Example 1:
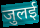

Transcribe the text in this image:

जुलई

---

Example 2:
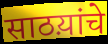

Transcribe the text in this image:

साठय़ांचे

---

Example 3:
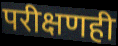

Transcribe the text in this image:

परीक्षणही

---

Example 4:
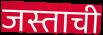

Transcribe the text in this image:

जस्ताची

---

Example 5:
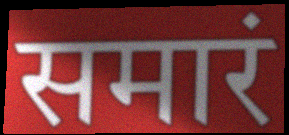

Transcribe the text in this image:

समारं